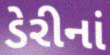
ડેરીનાં